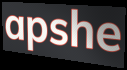
apshe